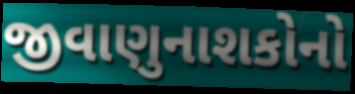
જીવાણુનાશકોનો